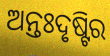
ଅନ୍ତଃଦୃଷ୍ଟିର